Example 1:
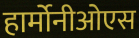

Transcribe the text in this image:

हार्मोनीओएस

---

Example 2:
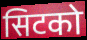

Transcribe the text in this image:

सिटको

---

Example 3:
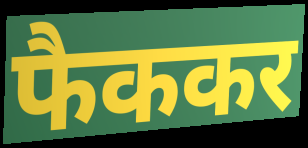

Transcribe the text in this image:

फैककर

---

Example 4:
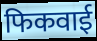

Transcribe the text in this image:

फिकवाई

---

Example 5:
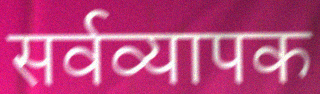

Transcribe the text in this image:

सर्वव्यापक